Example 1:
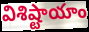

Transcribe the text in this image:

విశిష్టాయాం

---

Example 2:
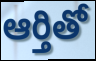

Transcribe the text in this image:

ఆర్తితో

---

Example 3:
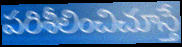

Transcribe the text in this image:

పరిశీలించిచూస్తే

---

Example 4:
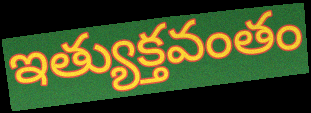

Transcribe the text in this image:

ఇత్యుక్తవంతం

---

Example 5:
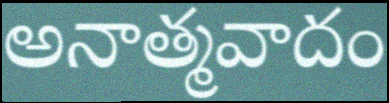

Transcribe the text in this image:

అనాత్మవాదం